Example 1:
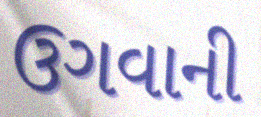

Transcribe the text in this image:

ઉગવાની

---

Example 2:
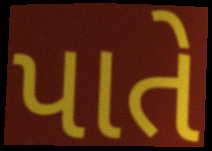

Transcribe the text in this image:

પાતે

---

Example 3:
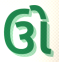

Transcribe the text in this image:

ઉો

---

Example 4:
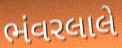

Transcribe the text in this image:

ભંવરલાલે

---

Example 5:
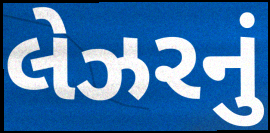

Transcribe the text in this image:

લેઝરનું